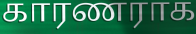
காரணராக